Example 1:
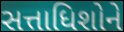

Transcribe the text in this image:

સત્તાધિશોને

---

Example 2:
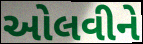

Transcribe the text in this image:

ઓલવીને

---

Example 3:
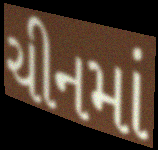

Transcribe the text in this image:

ચીનમાં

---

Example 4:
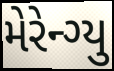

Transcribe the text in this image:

મેરેન્ગ્યુ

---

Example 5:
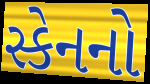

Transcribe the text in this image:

સ્કેનનો